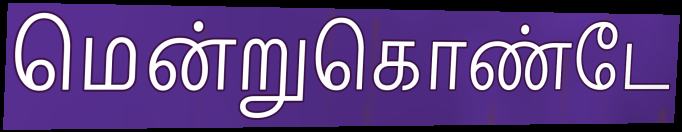
மென்றுகொண்டே